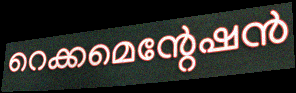
റെക്കമെന്റേഷൻ